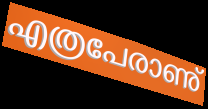
എത്രപേരാണു്